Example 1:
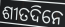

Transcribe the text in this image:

ଶୀତଦିନେ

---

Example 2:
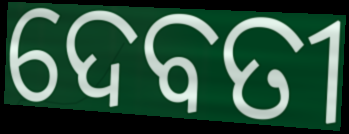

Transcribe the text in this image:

ଦେବତୀ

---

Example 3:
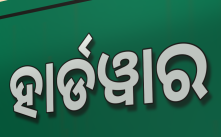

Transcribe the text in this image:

ହାର୍ଡୱାର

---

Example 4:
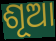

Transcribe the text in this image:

ଶୂଆ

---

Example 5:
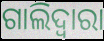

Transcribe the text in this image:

ଗାଲିଦ୍ଵାରା